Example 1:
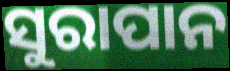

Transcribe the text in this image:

ସୁରାପାନ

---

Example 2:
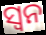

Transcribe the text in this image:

ସ୍ୱନ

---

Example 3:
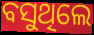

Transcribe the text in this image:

ବସୁଥିଲେ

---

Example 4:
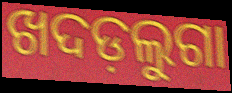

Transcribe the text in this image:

ଖଦଡ଼ଲୁଗା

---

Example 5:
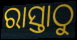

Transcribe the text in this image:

ରାସ୍ତାଠୁ